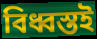
বিধ্বস্তই